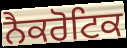
ਨੈਕਰੋਟਿਕ